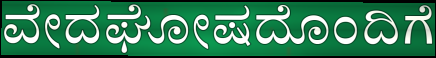
ವೇದಘೋಷದೊಂದಿಗೆ